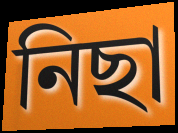
নিছা